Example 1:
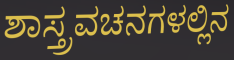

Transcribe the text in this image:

ಶಾಸ್ತ್ರವಚನಗಳಲ್ಲಿನ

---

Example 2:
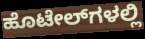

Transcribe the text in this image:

ಹೊಟೇಲ್‌ಗಳಲ್ಲಿ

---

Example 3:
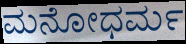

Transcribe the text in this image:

ಮನೋಧರ್ಮ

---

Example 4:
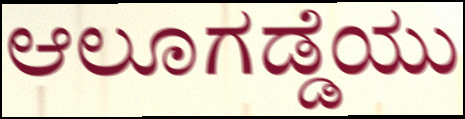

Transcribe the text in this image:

ಆಲೂಗಡ್ಡೆಯು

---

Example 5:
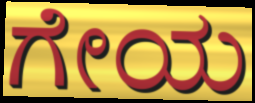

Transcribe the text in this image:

ಗೇಯ